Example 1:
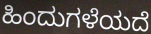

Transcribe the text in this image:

ಹಿಂದುಗಳೆಯದೆ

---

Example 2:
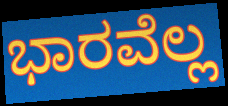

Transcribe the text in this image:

ಭಾರವೆಲ್ಲ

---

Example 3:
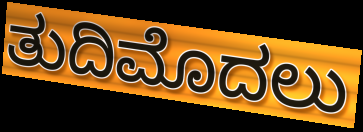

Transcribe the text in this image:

ತುದಿಮೊದಲು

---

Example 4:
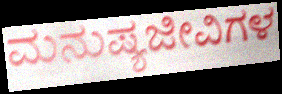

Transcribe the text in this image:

ಮನುಷ್ಯಜೀವಿಗಳ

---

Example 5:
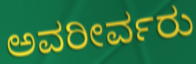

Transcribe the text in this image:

ಅವರೀರ್ವರು